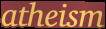
atheism